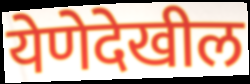
येणेदेखील